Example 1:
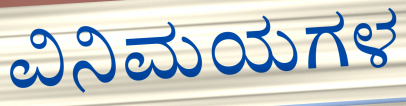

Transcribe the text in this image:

ವಿನಿಮಯಗಳ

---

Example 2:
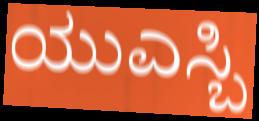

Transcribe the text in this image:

ಯುಎಸ್ಬಿ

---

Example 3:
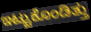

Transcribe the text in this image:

ಇಟ್ಟುಕೊಂಡಿತ್ತು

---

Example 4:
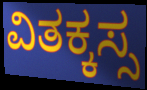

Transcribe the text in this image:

ವಿತಕ್ಕಸ್ಸ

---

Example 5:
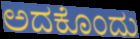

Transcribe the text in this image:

ಅದಕೊಂದು